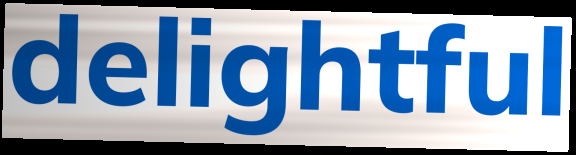
delightful